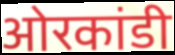
ओरकांडी